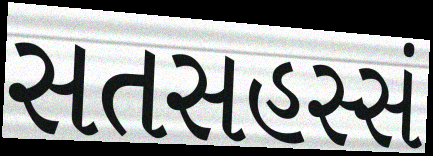
સતસહસ્સં